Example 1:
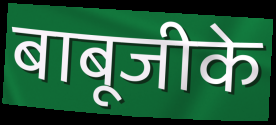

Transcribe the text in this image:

बाबूजीके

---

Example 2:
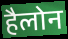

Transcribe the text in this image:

हैलोन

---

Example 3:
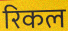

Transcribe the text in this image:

रिकल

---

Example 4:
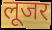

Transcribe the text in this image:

लूजर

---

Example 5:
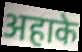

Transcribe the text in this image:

अहाके